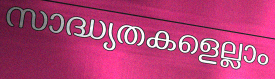
സാദ്ധ്യതകളെല്ലാം